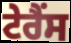
ਟੇਰੈਂਸ